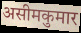
असीमकुमार